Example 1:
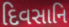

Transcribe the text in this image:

દિવસાનિ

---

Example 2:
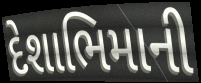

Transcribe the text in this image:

દેશાભિમાની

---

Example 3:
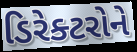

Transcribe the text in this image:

ડિરેક્ટરોને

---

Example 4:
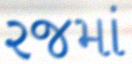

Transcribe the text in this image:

રજમાં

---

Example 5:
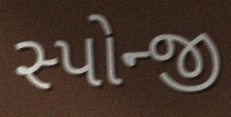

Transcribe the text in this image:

સ્પોન્જી